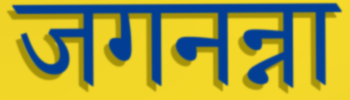
जगनन्ना